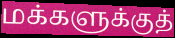
மக்களுக்குத்